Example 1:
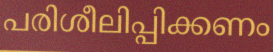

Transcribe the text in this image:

പരിശീലിപ്പിക്കണം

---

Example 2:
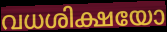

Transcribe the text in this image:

വധശിക്ഷയോ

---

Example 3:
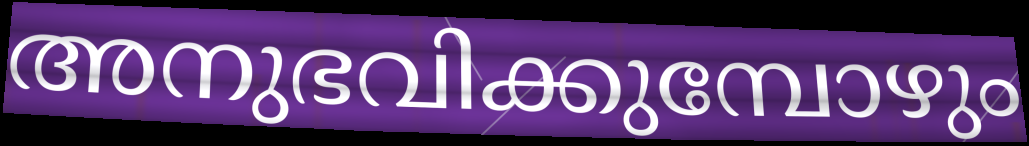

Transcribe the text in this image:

അനുഭവിക്കുമ്പോഴും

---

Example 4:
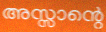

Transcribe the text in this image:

അസ്സാന്റെ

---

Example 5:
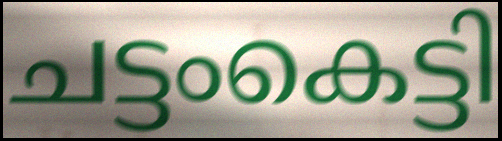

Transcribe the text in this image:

ചട്ടംകെട്ടി